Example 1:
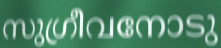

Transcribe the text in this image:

സുഗ്രീവനോടു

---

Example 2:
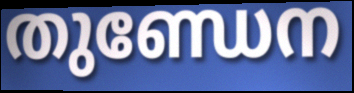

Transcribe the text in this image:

തുണ്ഡേന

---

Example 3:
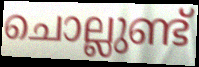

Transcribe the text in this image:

ചൊല്ലുണ്ട്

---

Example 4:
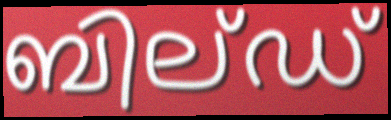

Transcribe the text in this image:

ബില്ഡ്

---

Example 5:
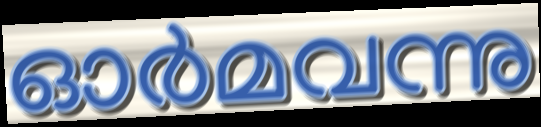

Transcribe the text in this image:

ഓർമവന്നു